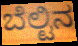
ಬೆಲ್ಟಿನ